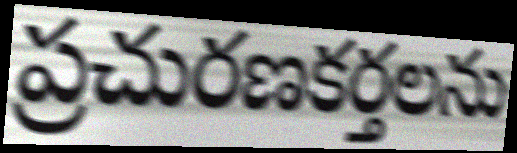
ప్రచురణకర్తలను